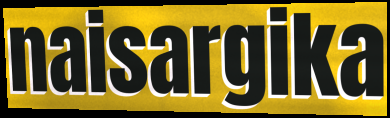
naisargika